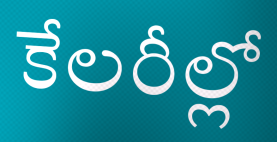
కేలరీల్లో